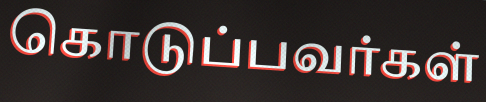
கொடுப்பவர்கள்